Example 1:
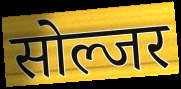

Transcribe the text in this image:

सोल्जर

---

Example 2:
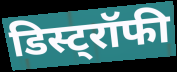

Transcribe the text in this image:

डिस्ट्रॉफी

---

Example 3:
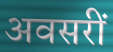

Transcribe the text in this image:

अवसरीं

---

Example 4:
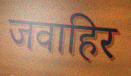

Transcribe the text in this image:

जवाहिर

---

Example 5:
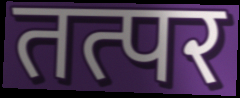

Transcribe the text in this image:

तत्पर